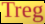
Treg